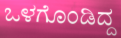
ಒಳಗೊಂಡಿದ್ದ